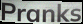
Pranks